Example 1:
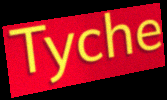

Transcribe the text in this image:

Tyche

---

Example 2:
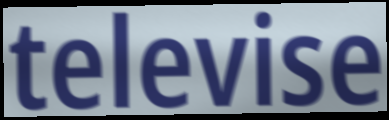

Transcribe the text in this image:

televise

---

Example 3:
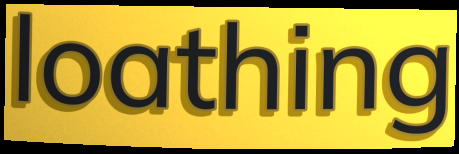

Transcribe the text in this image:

loathing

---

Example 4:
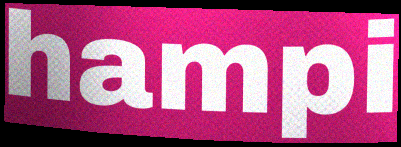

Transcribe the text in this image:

hampi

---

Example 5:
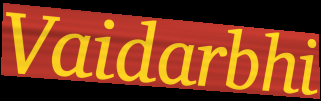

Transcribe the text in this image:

Vaidarbhi